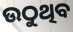
ଉଠୁଥିବ